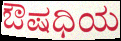
ಔಷಧಿಯ